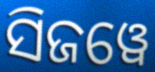
ସିଜୱେ